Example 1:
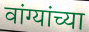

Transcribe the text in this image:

वांग्यांच्या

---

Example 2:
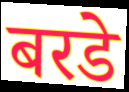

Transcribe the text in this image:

बरडे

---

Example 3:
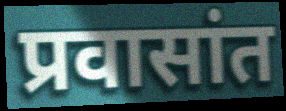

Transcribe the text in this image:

प्रवासांत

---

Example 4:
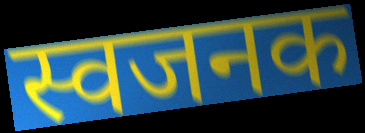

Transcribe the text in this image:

स्वजनक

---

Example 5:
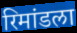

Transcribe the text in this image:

रिमांडला